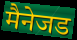
मैनेजड